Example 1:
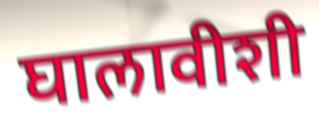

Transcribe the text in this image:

घालावीशी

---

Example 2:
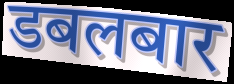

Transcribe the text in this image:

डबलबार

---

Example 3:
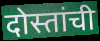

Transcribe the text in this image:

दोस्तांची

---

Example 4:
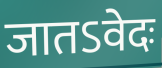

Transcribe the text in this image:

जातऽवेदः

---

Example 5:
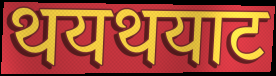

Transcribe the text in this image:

थयथयाट